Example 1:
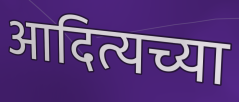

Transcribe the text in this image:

आदित्यच्या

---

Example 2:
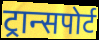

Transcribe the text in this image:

ट्रान्सपोर्ट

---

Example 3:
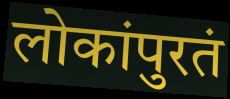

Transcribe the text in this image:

लोकांपुरतं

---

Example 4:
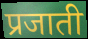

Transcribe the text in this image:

प्रजाती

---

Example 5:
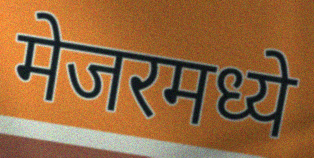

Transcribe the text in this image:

मेजरमध्ये